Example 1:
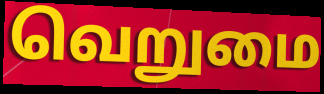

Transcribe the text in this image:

வெறுமை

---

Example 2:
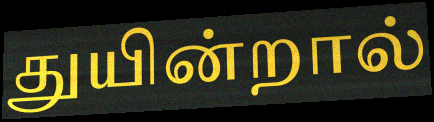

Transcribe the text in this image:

துயின்றால்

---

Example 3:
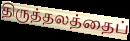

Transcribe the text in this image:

திருத்தலத்தைப்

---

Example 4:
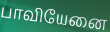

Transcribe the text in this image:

பாவியேனை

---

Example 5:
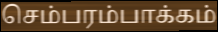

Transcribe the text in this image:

செம்பரம்பாக்கம்